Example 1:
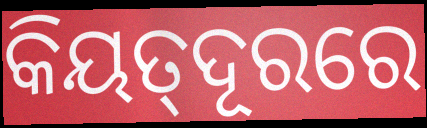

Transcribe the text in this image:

କିୟତ୍‌ଦୂରରେ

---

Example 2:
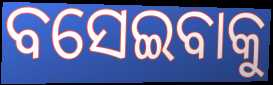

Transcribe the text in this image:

ବସେଇବାକୁ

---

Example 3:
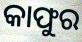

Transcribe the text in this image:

କାଫୁର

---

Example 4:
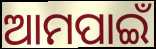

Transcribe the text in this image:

ଆମପାଇଁ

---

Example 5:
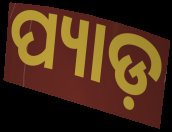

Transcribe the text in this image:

ପ୍ୟାଡ଼